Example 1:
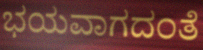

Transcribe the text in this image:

ಭಯವಾಗದಂತೆ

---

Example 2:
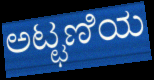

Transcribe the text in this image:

ಅಟ್ಟಣಿಯ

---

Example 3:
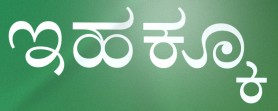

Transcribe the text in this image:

ಇಹಕ್ಕೂ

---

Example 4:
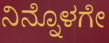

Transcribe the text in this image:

ನಿನ್ನೊಳಗೇ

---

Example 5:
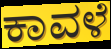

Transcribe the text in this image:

ಕಾವಳೆ